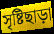
সৃষ্টিছাড়া